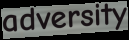
adversity